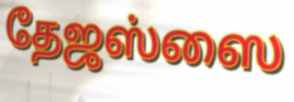
தேஜஸ்ஸை